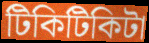
টিকিটিকিটা